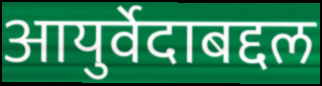
आयुर्वेदाबद्दल